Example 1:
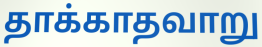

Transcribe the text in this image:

தாக்காதவாறு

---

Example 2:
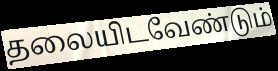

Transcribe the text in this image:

தலையிடவேண்டும்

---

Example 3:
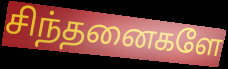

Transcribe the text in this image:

சிந்தனைகளே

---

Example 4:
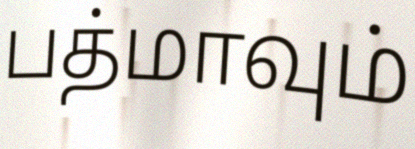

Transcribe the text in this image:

பத்மாவும்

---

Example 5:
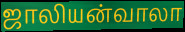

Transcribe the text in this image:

ஜாலியன்வாலா